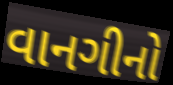
વાનગીનો